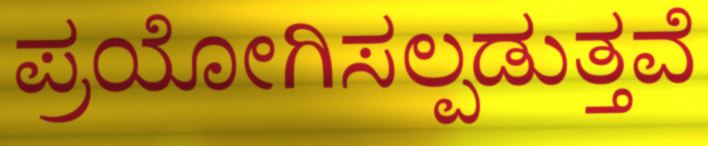
ಪ್ರಯೋಗಿಸಲ್ಪಡುತ್ತವೆ